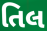
તિલ